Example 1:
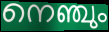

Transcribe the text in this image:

നെഞ്ചും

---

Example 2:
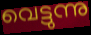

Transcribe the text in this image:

വെട്ടുന്നു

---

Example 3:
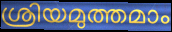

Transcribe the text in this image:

ശ്രിയമുത്തമാം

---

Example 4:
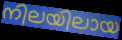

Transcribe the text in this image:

നിലയിലായ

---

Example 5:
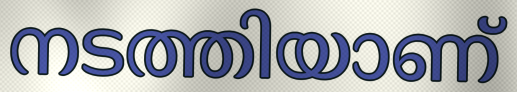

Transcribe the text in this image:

നടത്തിയാണ്